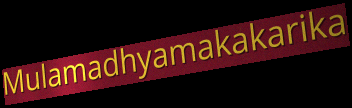
Mulamadhyamakakarika